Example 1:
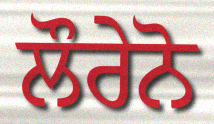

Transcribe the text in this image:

ਲੌਰੇਨੋ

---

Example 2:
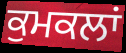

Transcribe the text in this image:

ਕੁਮਕਲਾਂ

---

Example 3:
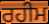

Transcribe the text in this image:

ਰਹੀਮ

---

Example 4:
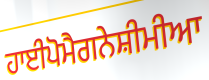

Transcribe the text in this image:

ਹਾਈਪੋਮੈਗਨੇਸ਼ੀਮੀਆ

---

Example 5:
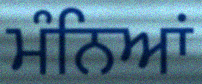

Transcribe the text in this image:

ਮੰਨਿਆਂ